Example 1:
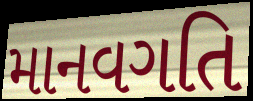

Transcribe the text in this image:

માનવગતિ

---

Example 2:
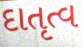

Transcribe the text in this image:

દાતૃત્વ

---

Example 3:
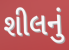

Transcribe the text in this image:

શીલનું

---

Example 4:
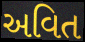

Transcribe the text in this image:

અવિત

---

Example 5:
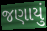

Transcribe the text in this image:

જણાયું